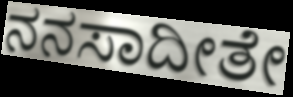
ನನಸಾದೀತೇ